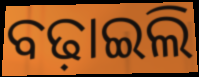
ବଢ଼ାଇଲି